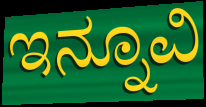
ಇನ್ನೂವಿ